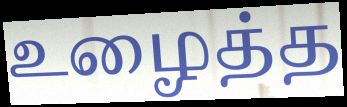
உழைத்த